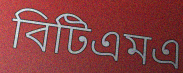
বিটিএমএ